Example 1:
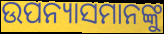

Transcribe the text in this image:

ଉପନ୍ୟାସମାନଙ୍କୁ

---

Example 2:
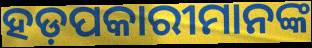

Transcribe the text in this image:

ହଡ଼ପକାରୀମାନଙ୍କ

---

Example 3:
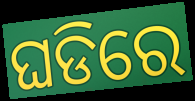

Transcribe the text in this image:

ଘଡିରେ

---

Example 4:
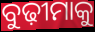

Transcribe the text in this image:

ବୁଢ଼ୀମାକୁ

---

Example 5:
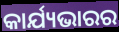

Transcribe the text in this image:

କାର୍ଯ୍ୟଭାରର